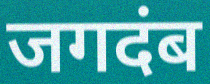
जगदंब